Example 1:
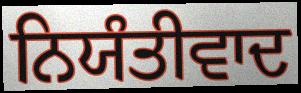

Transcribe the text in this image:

ਨਿਯੰਤੀਵਾਦ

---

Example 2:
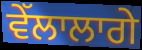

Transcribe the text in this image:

ਵੇੱਲਾਲਾਗੇ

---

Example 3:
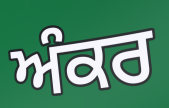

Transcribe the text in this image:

ਅੰਕਰ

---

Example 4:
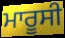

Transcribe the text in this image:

ਮਾਰੂਸੀ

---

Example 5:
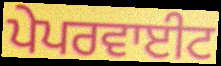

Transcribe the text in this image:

ਪੇਪਰਵਾਈਟ